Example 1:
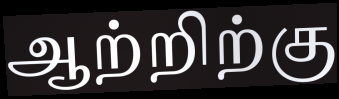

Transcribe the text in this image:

ஆற்றிற்கு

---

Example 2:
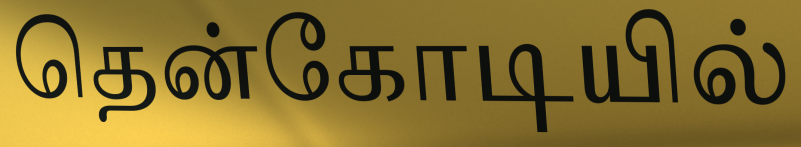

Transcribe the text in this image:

தென்கோடியில்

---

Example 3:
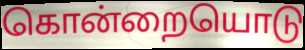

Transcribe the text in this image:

கொன்றையொடு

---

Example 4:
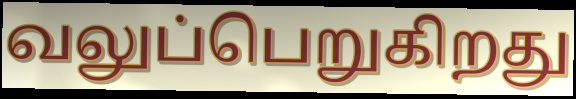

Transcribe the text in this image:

வலுப்பெறுகிறது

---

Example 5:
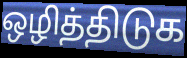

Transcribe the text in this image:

ஒழித்திடுக